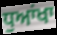
ਧੁਆਂਖਾ